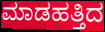
ಮಾಡಹತ್ತಿದ